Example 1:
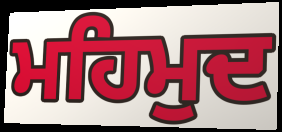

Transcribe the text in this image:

ਮਹਿਮੁਦ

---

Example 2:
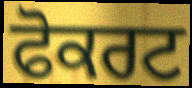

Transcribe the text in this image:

ਫੋਕਰਟ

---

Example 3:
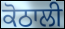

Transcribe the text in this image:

ਕੋਠਾਲੀ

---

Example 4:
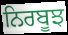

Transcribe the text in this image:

ਨਿਰਬੂਝ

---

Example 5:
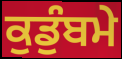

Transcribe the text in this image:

ਕੁਡੁੰਬਮੇ